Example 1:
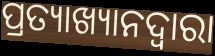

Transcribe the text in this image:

ପ୍ରତ୍ୟାଖ୍ୟାନଦ୍ଵାରା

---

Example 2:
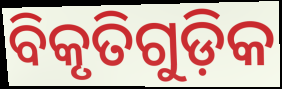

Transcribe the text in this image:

ବିକୃତିଗୁଡ଼ିକ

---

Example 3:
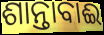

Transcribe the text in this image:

ଶାନ୍ତାବାଈ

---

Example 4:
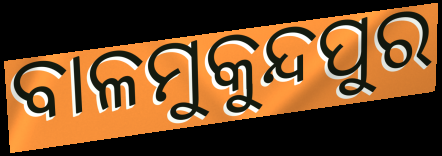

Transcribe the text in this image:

ବାଳମୁକୁନ୍ଦପୁର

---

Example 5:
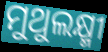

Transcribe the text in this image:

ମୁଥୁଲକ୍ଷ୍ମୀ